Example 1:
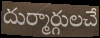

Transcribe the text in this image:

దుర్మార్గులచే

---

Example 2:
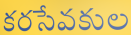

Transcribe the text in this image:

కరసేవకుల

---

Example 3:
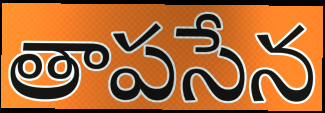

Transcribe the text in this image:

తాపసేన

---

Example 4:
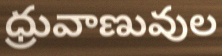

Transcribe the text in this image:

ధ్రువాణువుల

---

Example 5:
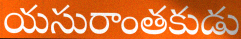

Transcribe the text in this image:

యసురాంతకుడు